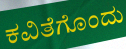
ಕವಿತೆಗೊಂದು